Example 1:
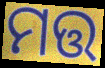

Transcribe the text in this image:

ମତ୍ତ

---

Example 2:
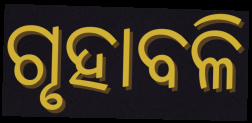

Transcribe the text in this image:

ଗୃହାବଳି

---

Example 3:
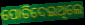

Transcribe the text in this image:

ପୋଡିଦେଇଥିଲେ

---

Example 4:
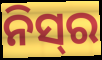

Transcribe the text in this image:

ନିସ୍‌ର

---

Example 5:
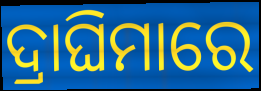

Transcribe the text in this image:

ଦ୍ରାଘିମାରେ